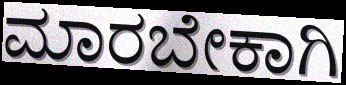
ಮಾರಬೇಕಾಗಿ